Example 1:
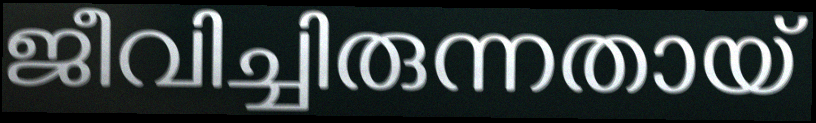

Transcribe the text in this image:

ജീവിച്ചിരുന്നതായ്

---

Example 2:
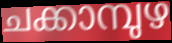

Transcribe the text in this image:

ചക്കാമ്പുഴ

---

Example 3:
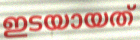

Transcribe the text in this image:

ഇടയായത്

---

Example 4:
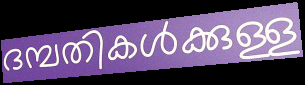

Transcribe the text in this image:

ദമ്പതികൾക്കുള്ള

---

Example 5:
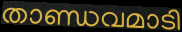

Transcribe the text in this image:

താണ്ഡവമാടി